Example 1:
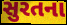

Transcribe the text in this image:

સુરતના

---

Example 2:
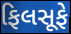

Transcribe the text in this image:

ફિલસૂફે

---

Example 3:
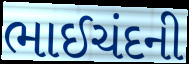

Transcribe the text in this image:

ભાઈચંદની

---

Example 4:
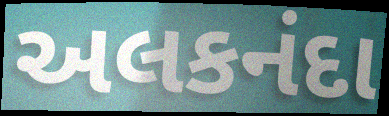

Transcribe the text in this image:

અલકનંદા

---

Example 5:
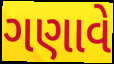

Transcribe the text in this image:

ગણાવે